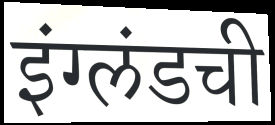
इंग्लंडची